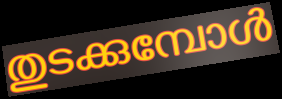
തുടക്കുമ്പോൾ